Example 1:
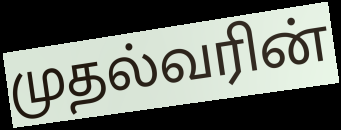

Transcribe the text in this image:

முதல்வரின்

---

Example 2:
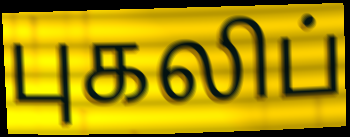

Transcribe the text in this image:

புகலிப்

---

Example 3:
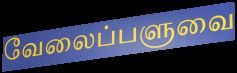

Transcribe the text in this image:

வேலைப்பளுவை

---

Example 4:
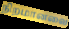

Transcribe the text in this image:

நிறமானவை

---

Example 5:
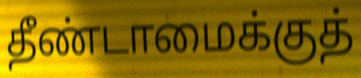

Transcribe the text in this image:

தீண்டாமைக்குத்